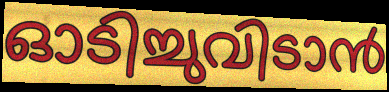
ഓടിച്ചുവിടാൻ